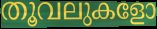
തൂവലുകളോ